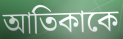
আতিকাকে